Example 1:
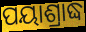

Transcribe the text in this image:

ପୟାଶ୍ରାଦ୍ଧ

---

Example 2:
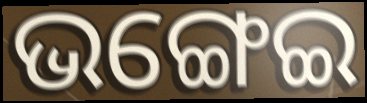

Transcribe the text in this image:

ଭଙ୍ଗେଇ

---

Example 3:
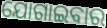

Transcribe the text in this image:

ଯୋଗାଇବାର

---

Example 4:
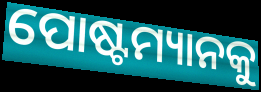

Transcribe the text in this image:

ପୋଷ୍ଟମ୍ୟାନକୁ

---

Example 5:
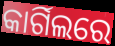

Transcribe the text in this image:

କାର୍ଗିଲରେ